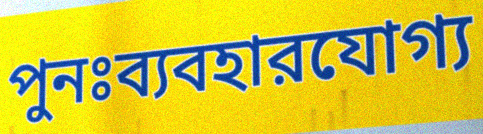
পুনঃব্যবহারযোগ্য